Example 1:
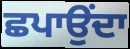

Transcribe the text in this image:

ਛਪਾਉਂਦਾ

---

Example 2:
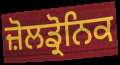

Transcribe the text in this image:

ਜ਼ੋਲਡ੍ਰੋਨਿਕ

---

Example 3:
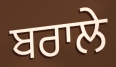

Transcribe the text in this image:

ਬਰਾਲੇ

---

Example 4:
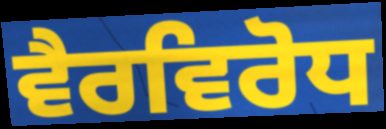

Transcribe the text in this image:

ਵੈਰਵਿਰੋਧ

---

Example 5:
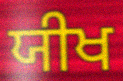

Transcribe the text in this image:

ਯੀਖ